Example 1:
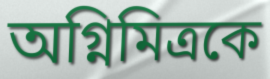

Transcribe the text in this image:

অগ্নিমিত্রকে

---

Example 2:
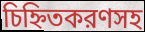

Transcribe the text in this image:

চিহ্নিতকরণসহ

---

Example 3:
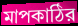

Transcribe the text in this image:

মাপকাঠির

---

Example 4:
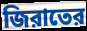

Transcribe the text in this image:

জিরাতের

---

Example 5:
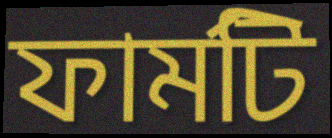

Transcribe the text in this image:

ফার্মটি